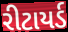
રીટાયર્ડ